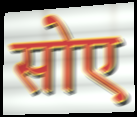
सोए